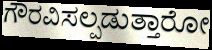
ಗೌರವಿಸಲ್ಪಡುತ್ತಾರೋ